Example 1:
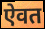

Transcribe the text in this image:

ऐवत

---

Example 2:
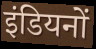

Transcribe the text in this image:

इंडियनों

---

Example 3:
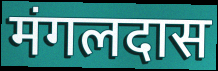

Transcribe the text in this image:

मंगलदास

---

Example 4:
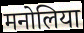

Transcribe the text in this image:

मनोलिया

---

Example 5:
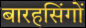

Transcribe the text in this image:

बारहसिंगों